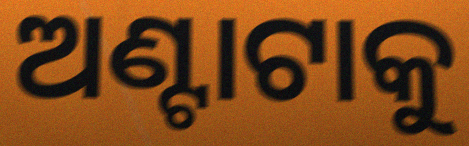
ଅଣ୍ଟାଟାକୁ